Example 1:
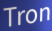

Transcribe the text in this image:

Tron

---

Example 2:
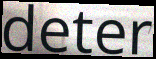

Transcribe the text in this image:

deter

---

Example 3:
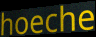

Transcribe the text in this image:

hoeche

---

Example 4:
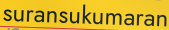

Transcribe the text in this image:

suransukumaran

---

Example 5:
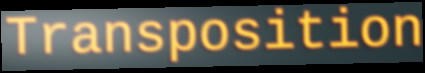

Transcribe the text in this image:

Transposition